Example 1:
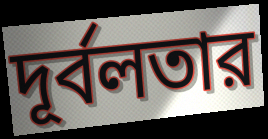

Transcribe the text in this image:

দূর্বলতার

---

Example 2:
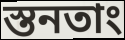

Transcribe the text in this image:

স্তনতাং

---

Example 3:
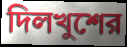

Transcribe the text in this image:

দিলখুশের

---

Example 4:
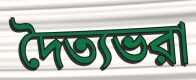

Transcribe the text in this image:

দৈত্যভরা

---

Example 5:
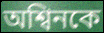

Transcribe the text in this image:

অশ্বিনকে